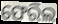
ଫେରିଲ